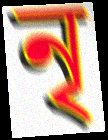
নৃ